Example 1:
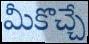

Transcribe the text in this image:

మీకొచ్చే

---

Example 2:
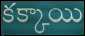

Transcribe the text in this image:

కక్కాయి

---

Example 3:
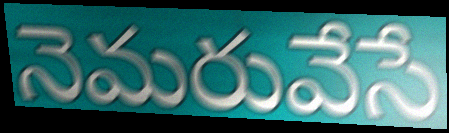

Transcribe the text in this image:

నెమరువేసే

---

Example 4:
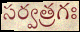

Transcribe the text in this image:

సర్వత్రగః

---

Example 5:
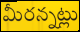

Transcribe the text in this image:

మీరన్నట్లు